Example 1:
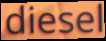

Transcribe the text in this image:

diesel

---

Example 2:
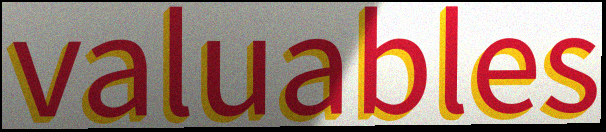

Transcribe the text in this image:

valuables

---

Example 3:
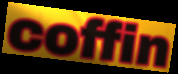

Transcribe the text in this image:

coffin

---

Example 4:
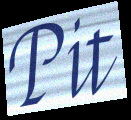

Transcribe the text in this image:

Pit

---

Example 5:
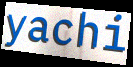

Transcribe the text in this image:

yachi